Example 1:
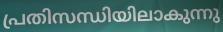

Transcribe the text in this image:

പ്രതിസന്ധിയിലാകുന്നു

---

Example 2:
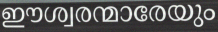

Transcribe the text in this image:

ഈശ്വരന്മാരേയും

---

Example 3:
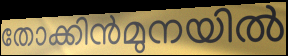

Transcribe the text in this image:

തോക്കിൻമുനയിൽ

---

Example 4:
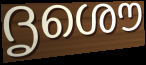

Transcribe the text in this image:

ദൃശൌ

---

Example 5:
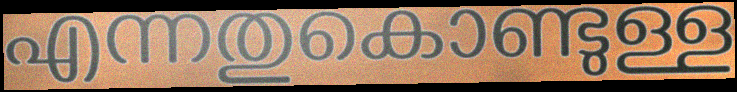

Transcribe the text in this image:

എന്നതുകൊണ്ടുള്ള